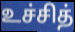
உச்சித்